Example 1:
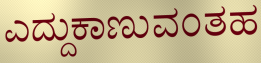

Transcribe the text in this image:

ಎದ್ದುಕಾಣುವಂತಹ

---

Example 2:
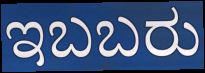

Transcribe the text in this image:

ಇಬಬರು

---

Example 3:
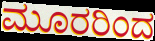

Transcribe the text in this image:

ಮೂರರಿಂದ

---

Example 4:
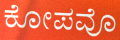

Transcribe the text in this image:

ಕೋಪವೊ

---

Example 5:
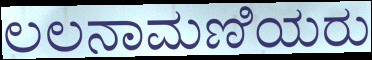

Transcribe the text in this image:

ಲಲನಾಮಣಿಯರು